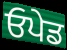
ਓਪੇਡ